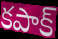
కపాక్